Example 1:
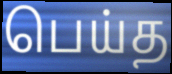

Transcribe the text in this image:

பெய்த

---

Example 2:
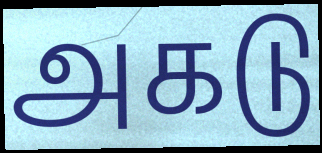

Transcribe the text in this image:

அகடு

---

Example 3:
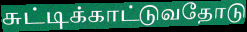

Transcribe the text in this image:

சுட்டிக்காட்டுவதோடு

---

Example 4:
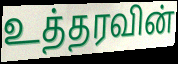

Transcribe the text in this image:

உத்தரவின்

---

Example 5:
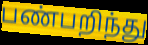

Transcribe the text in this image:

பண்பறிந்து